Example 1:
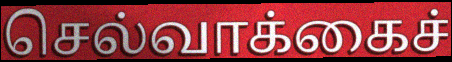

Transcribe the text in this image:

செல்வாக்கைச்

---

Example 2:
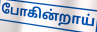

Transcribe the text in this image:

போகின்றாய்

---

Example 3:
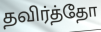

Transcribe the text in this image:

தவிர்த்தோ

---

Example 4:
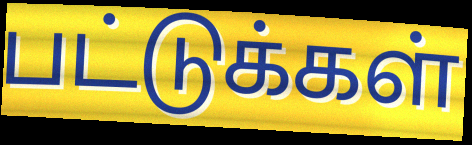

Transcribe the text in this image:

பட்டுக்கள்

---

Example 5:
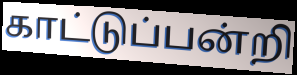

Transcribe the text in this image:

காட்டுப்பன்றி